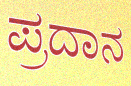
ಪ್ರದಾನ